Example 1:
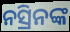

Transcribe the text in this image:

ନସ୍ରିନଙ୍କ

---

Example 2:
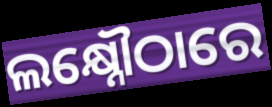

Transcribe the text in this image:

ଲକ୍ଷ୍ନୌଠାରେ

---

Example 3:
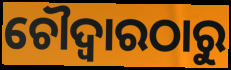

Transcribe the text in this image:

ଚୌଦ୍ୱାରଠାରୁ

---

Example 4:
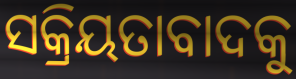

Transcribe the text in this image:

ସକ୍ରିୟତାବାଦକୁ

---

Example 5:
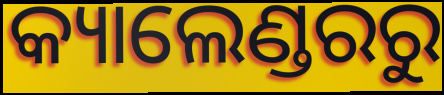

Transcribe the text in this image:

କ୍ୟାଲେଣ୍ଡରରୁ